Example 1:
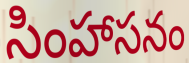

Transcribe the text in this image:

సింహాసనం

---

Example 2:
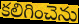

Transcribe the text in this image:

కలిగించెను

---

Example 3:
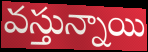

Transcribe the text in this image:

వస్తున్నాయి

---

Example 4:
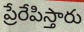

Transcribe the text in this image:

ప్రేరేపిస్తారు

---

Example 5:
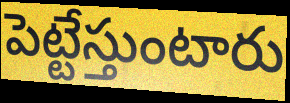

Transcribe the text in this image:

పెట్టేస్తుంటారు